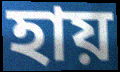
হায়